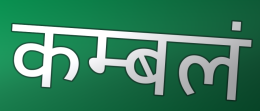
कम्बलं